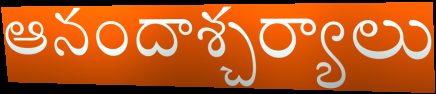
ఆనందాశ్చర్యాలు